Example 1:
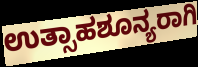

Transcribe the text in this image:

ಉತ್ಸಾಹಶೂನ್ಯರಾಗಿ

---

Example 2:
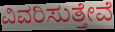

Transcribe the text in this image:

ವಿವರಿಸುತ್ತೇವೆ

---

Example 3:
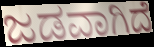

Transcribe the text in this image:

ಜಡವಾಗಿದೆ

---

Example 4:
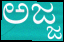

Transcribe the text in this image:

ಅಜ್ಜ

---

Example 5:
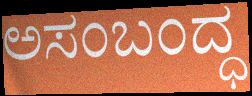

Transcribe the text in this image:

ಅಸಂಬಂದ್ಧ